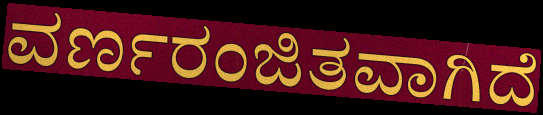
ವರ್ಣರಂಜಿತವಾಗಿದೆ